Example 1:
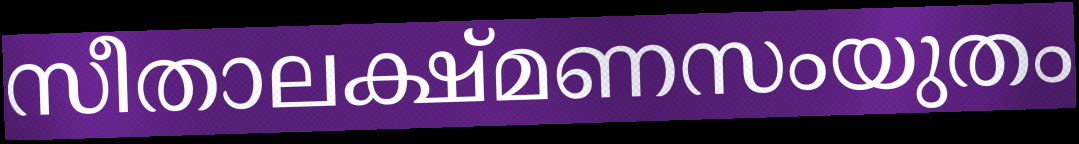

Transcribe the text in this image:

സീതാലക്ഷ്മണസംയുതം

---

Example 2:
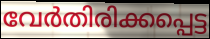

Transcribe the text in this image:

വേർതിരിക്കപ്പെട്ട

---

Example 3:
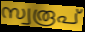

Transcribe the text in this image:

സ്വരൂപ്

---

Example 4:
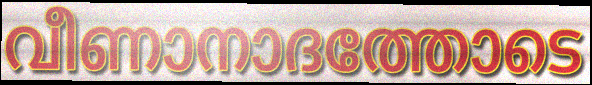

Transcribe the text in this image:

വീണാനാദത്തോടെ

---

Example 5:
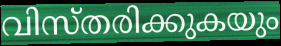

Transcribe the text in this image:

വിസ്തരിക്കുകയും